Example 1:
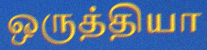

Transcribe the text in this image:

ஒருத்தியா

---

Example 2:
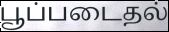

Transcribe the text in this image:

பூப்படைதல்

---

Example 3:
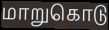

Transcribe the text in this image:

மாறுகொடு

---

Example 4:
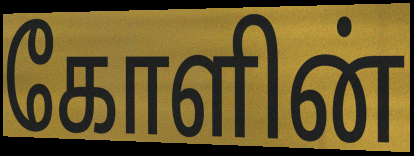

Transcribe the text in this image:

கோளின்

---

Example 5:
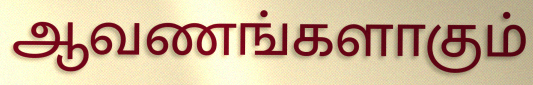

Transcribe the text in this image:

ஆவணங்களாகும்